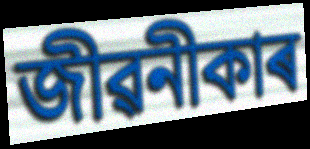
জীৱনীকাৰ